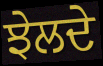
ਝੇਲਦੇ